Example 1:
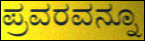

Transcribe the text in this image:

ಪ್ರವರವನ್ನೂ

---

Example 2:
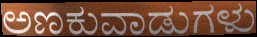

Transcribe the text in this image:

ಅಣಕುವಾಡುಗಳು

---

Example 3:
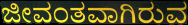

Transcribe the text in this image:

ಜೀವಂತವಾಗಿರುವ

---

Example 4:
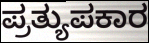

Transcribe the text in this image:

ಪ್ರತ್ಯುಪಕಾರ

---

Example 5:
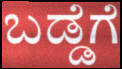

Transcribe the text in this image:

ಬಡ್ಡೆಗೆ